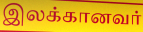
இலக்கானவர்